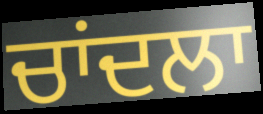
ਚਾਂਦਲਾ